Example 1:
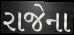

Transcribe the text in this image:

રાજેના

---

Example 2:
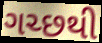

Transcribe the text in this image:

ગચ્છથી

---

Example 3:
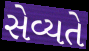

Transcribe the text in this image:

સેવ્યતે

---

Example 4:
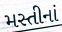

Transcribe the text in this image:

મસ્તીનાં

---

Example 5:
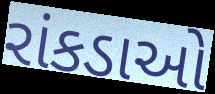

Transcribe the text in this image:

રાંકડાઓ